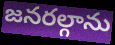
జనరల్గాను